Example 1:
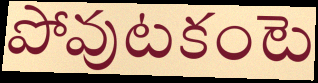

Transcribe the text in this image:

పోవుటకంటె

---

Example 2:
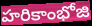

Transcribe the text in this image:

హరికాంభోజి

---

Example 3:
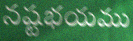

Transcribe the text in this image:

నష్టభయము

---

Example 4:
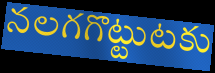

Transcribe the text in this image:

నలగగొట్టుటకు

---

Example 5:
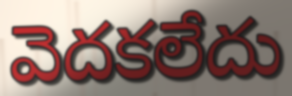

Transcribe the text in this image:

వెదకలేదు